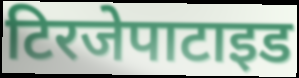
टिरजेपाटाइड